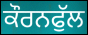
ਕੌਰਨਫੁੱਲ